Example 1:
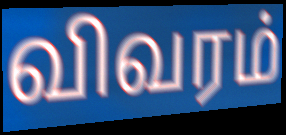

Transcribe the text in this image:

விவரம்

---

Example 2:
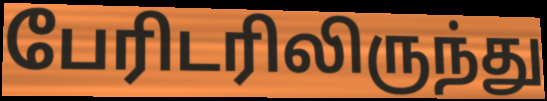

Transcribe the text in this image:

பேரிடரிலிருந்து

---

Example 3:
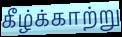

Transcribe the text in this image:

கீழ்க்காற்று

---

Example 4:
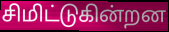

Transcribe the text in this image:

சிமிட்டுகின்றன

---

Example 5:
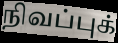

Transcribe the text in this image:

நிவப்புக்